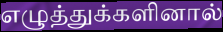
எழுத்துக்களினால்